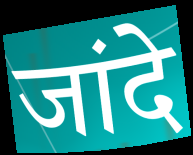
जांदे